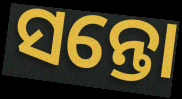
ସନ୍ତୋ